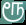
ரூ